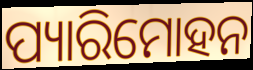
ପ୍ୟାରିମୋହନ